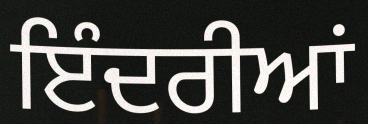
ਇੰਦਰੀਆਂ